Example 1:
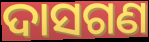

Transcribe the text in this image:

ଦାସଗଣ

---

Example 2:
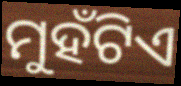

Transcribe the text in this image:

ମୁହଁଟିଏ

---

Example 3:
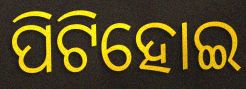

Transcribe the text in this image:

ପିଟିହୋଇ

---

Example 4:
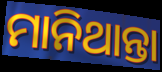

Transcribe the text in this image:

ମାନିଥାନ୍ତା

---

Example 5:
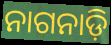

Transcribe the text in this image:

ନାଗନାଡ଼ି